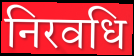
निरवधि